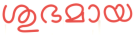
ശുഭമായ